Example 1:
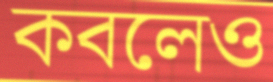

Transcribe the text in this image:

কবলেও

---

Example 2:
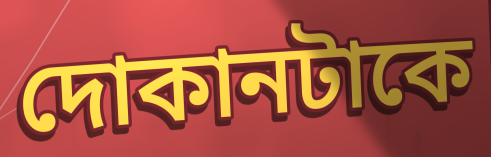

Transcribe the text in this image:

দোকানটাকে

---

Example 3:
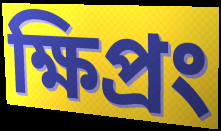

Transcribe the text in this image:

ক্ষিপ্রং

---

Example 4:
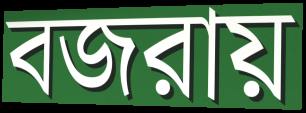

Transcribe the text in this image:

বজরায়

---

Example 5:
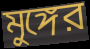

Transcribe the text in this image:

মুঙ্গের